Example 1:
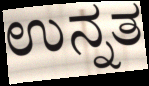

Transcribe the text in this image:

ಉನ್ನತ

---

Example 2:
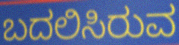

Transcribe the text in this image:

ಬದಲಿಸಿರುವ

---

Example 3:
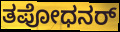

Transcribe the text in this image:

ತಪೋಧನರ್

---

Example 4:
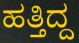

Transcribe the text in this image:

ಹತ್ತಿದ್ದ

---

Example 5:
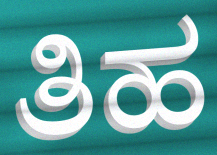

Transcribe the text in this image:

ತಿಹ